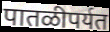
पातळीपर्यत